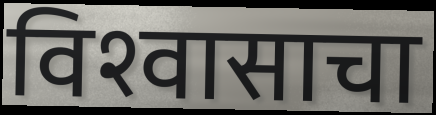
विश्वासाचा